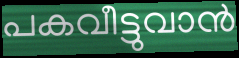
പകവീട്ടുവാൻ